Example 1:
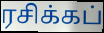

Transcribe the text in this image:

ரசிக்கப்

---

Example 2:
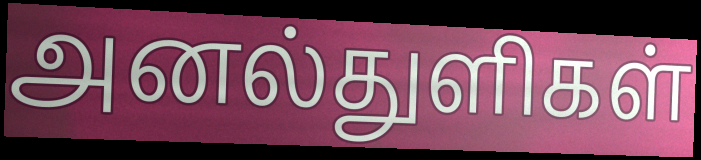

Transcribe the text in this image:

அனல்துளிகள்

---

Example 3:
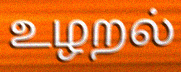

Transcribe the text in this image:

உழறல்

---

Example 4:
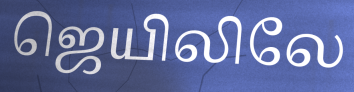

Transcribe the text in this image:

ஜெயிலிலே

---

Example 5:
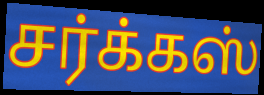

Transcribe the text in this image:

சர்க்கஸ்